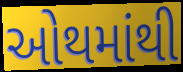
ઓથમાંથી